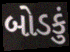
બોડકું